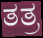
ತತ್ರ